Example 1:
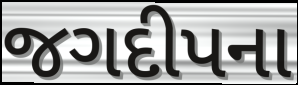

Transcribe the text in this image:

જગદીપના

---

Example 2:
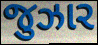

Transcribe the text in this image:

જુઝાર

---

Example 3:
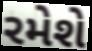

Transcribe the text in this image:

રમેશે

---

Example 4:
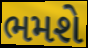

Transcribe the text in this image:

ભમશે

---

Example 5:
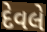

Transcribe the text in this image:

દેવલે